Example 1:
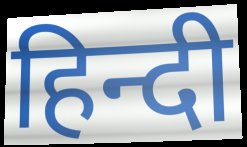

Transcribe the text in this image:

हिन्‍दी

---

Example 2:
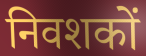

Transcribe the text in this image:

निवशकों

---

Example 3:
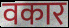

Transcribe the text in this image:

वकार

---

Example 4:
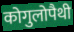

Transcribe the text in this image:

कोगुलोपैथी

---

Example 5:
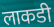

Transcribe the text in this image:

लाकडी